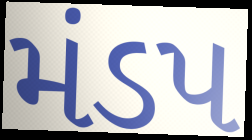
મંડપ